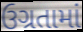
ઉગ્રતામાં